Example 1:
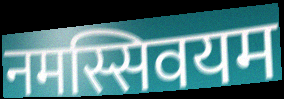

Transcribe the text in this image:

नमस्सिवयम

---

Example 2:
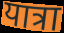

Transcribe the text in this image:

यात्रा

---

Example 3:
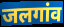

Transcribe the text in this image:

जलगांव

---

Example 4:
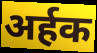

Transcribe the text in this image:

अर्हक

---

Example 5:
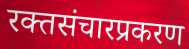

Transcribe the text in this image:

रक्तसंचारप्रकरण